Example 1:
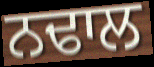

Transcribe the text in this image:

ਨਢਾਲ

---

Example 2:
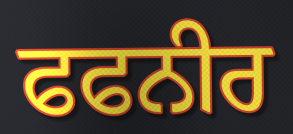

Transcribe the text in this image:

ਫਫਨੀਰ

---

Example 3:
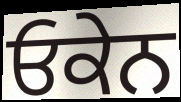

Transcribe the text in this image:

ਓਕੇਨ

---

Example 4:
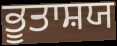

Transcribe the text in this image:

ਭੂਤਾਸ਼ਯ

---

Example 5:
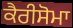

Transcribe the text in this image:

ਕੈਰੀਸੋਮਾ